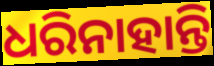
ଧରିନାହାନ୍ତି